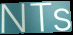
NTs